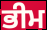
ਭੀਮ